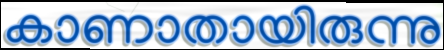
കാണാതായിരുന്നു